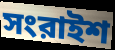
সংরাইশ